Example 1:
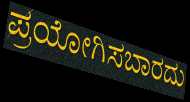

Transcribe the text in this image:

ಪ್ರಯೋಗಿಸಬಾರದು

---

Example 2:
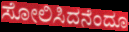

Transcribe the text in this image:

ಸೋಲಿಸಿದನೆಂದೂ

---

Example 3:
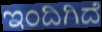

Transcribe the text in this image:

ಇಂದಿಗಿದೆ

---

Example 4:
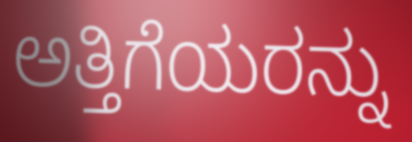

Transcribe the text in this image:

ಅತ್ತಿಗೆಯರನ್ನು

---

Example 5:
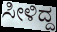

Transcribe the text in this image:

ಸೀಳಿದ್ದ